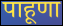
पाहूणा